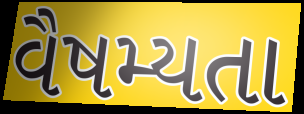
વૈષમ્યતા